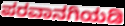
ಪರವಾನಗಿಯಡಿ